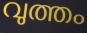
വുത്തം